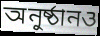
অনুষ্ঠানও